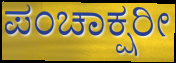
ಪಂಚಾಕ್ಷರೀ